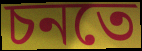
চনতে